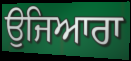
ਉਜਿਆਰਾ